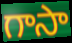
గాసా